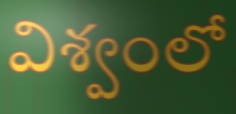
విశ్వంలో